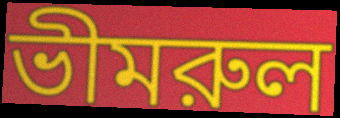
ভীমরুল